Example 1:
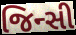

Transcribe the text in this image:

જિન્સી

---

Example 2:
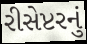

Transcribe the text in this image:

રીસેપ્ટરનું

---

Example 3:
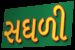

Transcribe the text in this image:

સઘળી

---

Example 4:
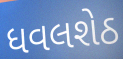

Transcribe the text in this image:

ધવલશેઠ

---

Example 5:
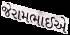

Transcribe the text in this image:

જેરામભાઈએ